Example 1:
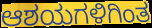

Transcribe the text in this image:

ಆಶಯಗಳಿಗಿಂತ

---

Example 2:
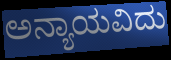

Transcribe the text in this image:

ಅನ್ಯಾಯವಿದು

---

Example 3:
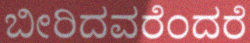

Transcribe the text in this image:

ಬೀರಿದವರೆಂದರೆ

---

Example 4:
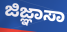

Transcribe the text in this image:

ಜಿಜ್ಞಾಸಾ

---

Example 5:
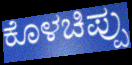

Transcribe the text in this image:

ಕೊಳಚಿಪ್ಪು